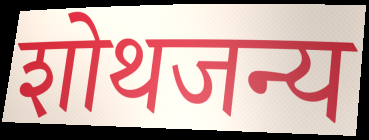
शोथजन्य